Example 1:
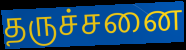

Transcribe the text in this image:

தருச்சனை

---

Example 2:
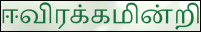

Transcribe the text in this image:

ஈவிரக்கமின்றி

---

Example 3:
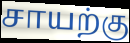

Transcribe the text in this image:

சாயற்கு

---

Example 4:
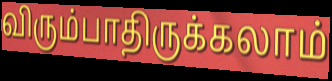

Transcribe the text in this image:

விரும்பாதிருக்கலாம்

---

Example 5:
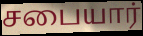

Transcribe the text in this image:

சபையார்